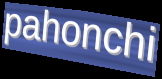
pahonchi